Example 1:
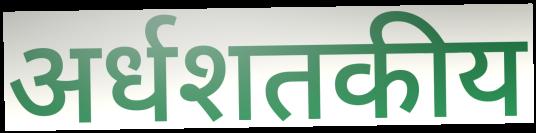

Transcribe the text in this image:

अर्धशतकीय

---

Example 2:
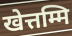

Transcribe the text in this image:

खेत्तम्मि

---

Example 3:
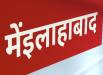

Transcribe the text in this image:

मेंइलाहाबाद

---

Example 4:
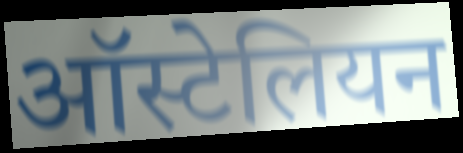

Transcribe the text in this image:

ऑस्टेलियन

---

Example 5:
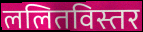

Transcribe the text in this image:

ललितविस्तर